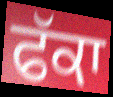
ਫੱਕਾ